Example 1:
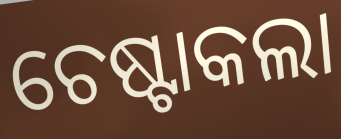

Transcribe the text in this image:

ଚେଷ୍ଟାକଲା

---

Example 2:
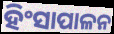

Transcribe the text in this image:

ହିଂସାପାଳନ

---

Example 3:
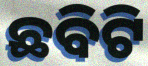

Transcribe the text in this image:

ଛବିଟି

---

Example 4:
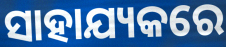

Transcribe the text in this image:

ସାହାଯ୍ୟକରେ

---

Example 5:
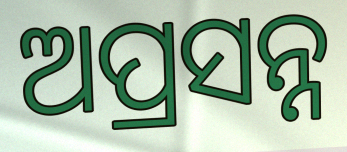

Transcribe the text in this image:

ଅପ୍ରସନ୍ନ